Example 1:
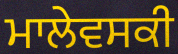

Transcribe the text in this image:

ਮਾਲੇਵਸਕੀ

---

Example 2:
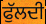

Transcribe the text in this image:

ਫੁੱਲਦੀ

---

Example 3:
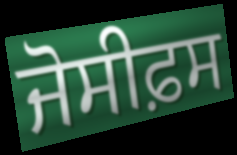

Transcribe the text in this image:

ਜੋਸੀਫ਼ਸ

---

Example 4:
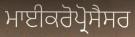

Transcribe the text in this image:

ਮਾਈਕਰੋਪ੍ਰੋਸੈਸਰ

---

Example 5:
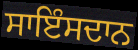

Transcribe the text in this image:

ਸਾਇੰਸਦਾਨ